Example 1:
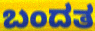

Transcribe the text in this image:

ಬಂದತ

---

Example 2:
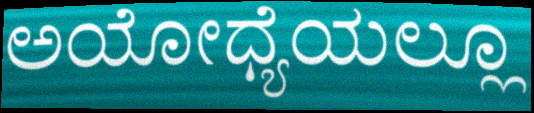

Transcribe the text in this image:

ಅಯೋಧ್ಯೆಯಲ್ಲೂ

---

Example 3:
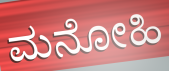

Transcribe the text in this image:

ಮನೋಹಿ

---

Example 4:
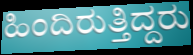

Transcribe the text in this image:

ಹಿಂದಿರುತ್ತಿದ್ದರು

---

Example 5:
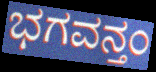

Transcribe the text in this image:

ಭಗವನ್ತಂ